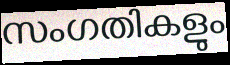
സംഗതികളും